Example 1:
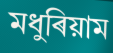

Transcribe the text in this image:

মধুৰিয়াম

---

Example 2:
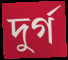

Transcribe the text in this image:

দুৰ্গ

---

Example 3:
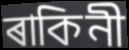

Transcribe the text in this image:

ৰাকিনী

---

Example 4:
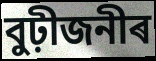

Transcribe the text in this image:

বুঢ়ীজনীৰ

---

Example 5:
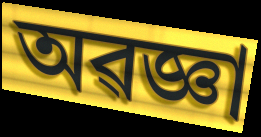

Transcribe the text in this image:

অৱজ্ঞা